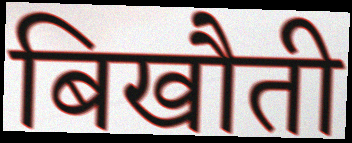
बिखौती